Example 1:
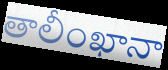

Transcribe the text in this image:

తాలీంఖానా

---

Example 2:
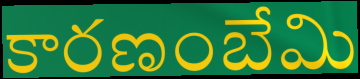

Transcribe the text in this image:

కారణంబేమి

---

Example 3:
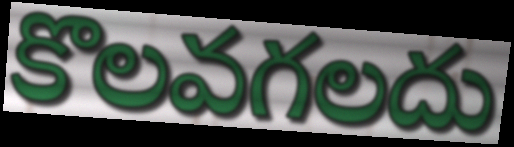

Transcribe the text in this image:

కొలవగలదు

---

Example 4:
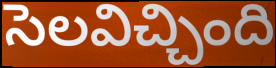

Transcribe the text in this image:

సెలవిచ్చింది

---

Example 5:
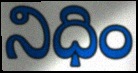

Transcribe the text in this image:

నిధిం